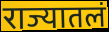
राज्यातलं